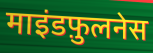
माइंडफ़ुलनेस